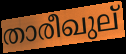
താരീഖുല്